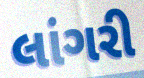
લાંગરી